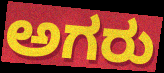
ಅಗರು